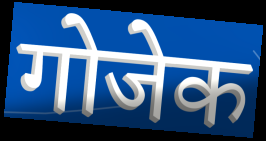
गोजेक